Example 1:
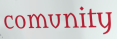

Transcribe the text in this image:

comunity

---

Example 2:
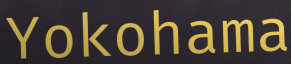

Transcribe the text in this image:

Yokohama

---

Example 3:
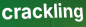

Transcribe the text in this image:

crackling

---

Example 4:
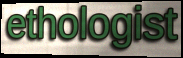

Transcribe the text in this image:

ethologist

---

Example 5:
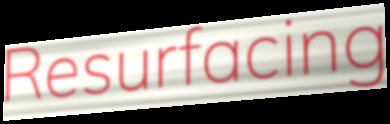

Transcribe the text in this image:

Resurfacing